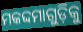
ମକଦ୍ଦମାଗୁଡ଼ିକୁ